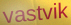
vastvik